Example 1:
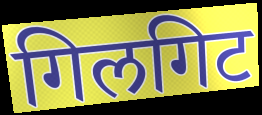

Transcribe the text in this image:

गिलगिट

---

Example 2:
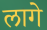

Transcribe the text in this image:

लागे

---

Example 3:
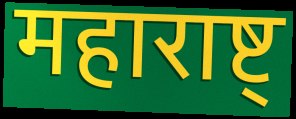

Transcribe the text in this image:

महाराष्ट्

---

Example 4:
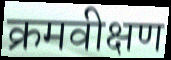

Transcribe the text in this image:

क्रमवीक्षण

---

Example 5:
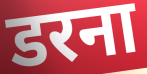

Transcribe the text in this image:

डरना